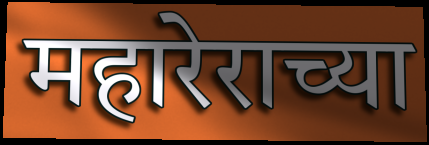
महारेराच्या